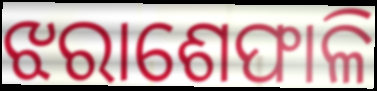
ଝରାଶେଫାଳି